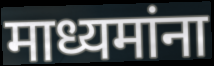
माध्यमांना